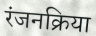
रंजनक्रिया